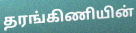
தரங்கிணியின்